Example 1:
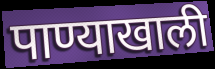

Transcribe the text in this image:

पाण्याखाली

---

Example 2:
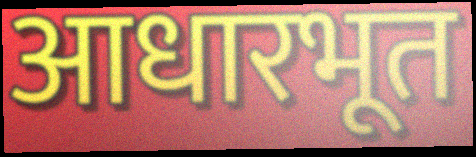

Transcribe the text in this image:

आधारभूत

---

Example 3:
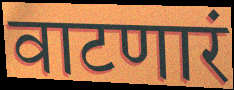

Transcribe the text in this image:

वाटणारं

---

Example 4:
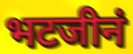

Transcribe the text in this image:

भटजीनं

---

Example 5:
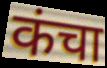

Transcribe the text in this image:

कंचा